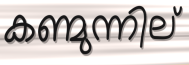
കണ്മുന്നില്